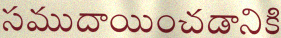
సముదాయించడానికి